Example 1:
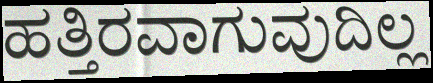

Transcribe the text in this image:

ಹತ್ತಿರವಾಗುವುದಿಲ್ಲ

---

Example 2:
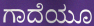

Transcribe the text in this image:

ಗಾದೆಯೂ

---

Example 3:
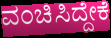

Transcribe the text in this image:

ವಂಚಿಸಿದ್ದೇಕೆ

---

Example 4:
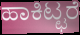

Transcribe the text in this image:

ಹಾಕಿಟ್ಟರೆ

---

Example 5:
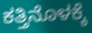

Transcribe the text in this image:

ಕತ್ತಿನೊಳಕ್ಕೆ